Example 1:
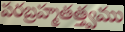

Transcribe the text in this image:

పరబ్రహ్మతత్త్వము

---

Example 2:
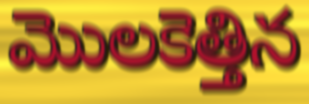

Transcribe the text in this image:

మొలకెత్తిన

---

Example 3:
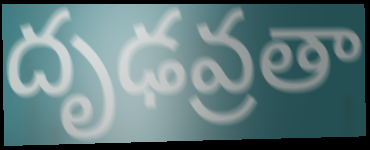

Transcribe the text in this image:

దృఢవ్రతా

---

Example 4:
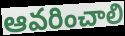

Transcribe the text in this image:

ఆవరించాలి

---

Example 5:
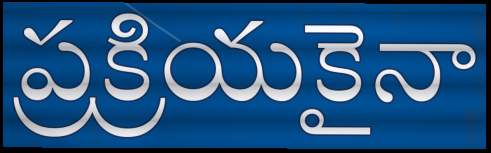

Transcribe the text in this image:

ప్రక్రియకైనా